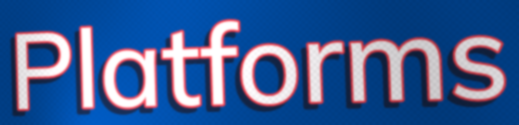
Platforms